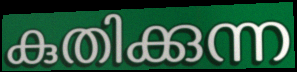
കുതിക്കുന്ന